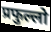
प्रफुल्लो